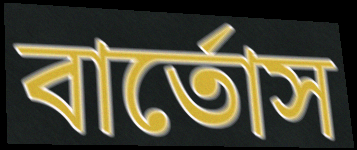
বার্তোস